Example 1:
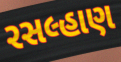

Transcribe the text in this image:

રસલ્હાણ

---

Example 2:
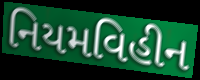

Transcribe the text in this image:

નિયમવિહીન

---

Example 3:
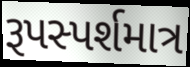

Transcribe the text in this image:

રૂપસ્પર્શમાત્ર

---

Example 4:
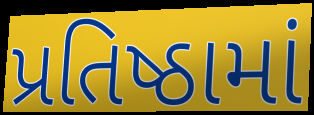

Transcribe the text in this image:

પ્રતિષ્ઠામાં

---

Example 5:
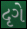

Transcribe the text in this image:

દૃગે